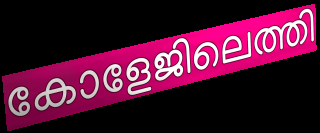
കോളേജിലെത്തി